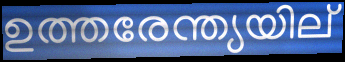
ഉത്തരേന്ത്യയില്